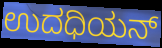
ಉದಧಿಯನ್